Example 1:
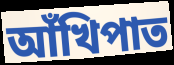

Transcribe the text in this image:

আঁখিপাত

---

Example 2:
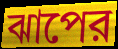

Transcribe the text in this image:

ঝাপের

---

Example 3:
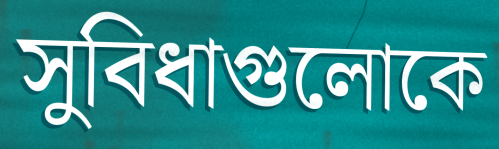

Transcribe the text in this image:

সুবিধাগুলোকে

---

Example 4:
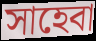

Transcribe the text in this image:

সাহেবা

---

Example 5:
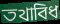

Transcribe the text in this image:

তথাবিধ